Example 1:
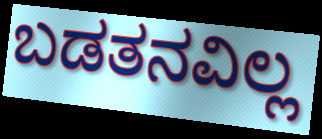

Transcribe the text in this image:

ಬಡತನವಿಲ್ಲ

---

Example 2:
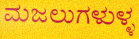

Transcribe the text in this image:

ಮಜಲುಗಳುಳ್ಳ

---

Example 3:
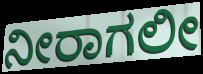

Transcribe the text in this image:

ನೀರಾಗಲೀ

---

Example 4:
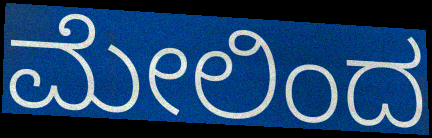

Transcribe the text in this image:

ಮೇಲಿಂದ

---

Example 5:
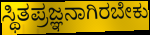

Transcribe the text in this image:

ಸ್ಥಿತಪ್ರಜ್ಞನಾಗಿರಬೇಕು